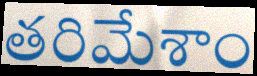
తరిమేశాం